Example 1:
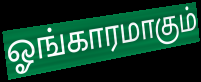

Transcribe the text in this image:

ஓங்காரமாகும்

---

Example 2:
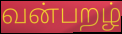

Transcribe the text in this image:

வன்பறழ்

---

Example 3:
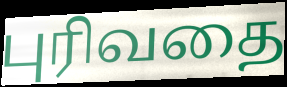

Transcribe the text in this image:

புரிவதை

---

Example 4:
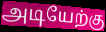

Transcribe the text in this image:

அடியேற்கு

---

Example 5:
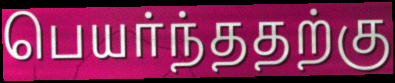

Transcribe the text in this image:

பெயர்ந்ததற்கு